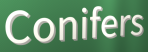
Conifers